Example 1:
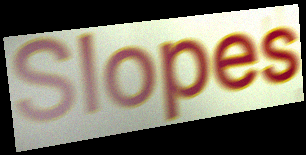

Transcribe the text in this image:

Slopes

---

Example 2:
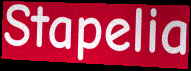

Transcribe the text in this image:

Stapelia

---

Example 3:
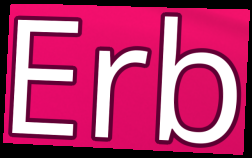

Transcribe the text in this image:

Erb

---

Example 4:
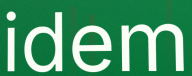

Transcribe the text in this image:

idem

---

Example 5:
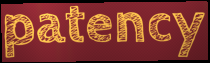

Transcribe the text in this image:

patency